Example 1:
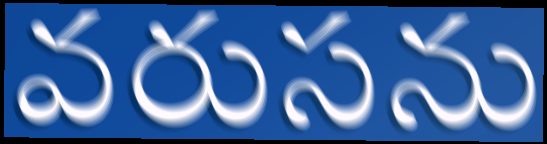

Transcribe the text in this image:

వరుసను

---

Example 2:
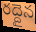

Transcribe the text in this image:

రద్దైన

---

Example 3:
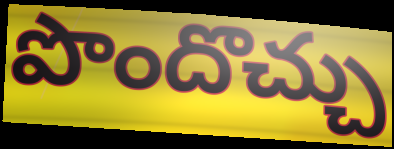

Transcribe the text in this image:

పొందొచ్చు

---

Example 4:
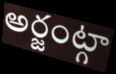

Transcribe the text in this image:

అర్జంట్గా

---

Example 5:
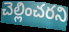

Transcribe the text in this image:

చెల్లించరని